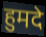
हुमदे